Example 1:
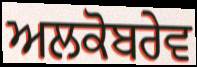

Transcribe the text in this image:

ਅਲਕੋਬਰੇਵ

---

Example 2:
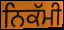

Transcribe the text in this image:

ਨਿਕੱਮੀ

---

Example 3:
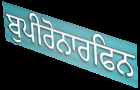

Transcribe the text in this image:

ਬੁਪੀਰੋਨਾਰਫਿਨ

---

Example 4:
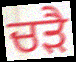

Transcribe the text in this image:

ਚੜੈ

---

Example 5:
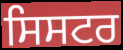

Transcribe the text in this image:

ਸਿਸਟਰ